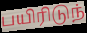
பயிரிடுந்